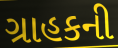
ગ્રાહકની